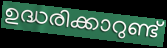
ഉദ്ധരിക്കാറുണ്ട്